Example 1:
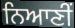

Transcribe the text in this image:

ਨਿਆਣੀਂ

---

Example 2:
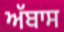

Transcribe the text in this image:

ਅੱਬਾਸ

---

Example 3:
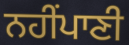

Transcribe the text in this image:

ਨਹੀਂਪਾਣੀ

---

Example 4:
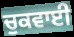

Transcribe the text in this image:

ਚੁਕਵਾਈ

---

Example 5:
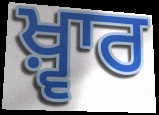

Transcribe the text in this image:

ਖ਼੍ਵਾਰ